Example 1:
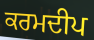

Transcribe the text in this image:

ਕਰਮਦੀਪ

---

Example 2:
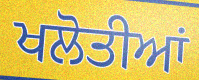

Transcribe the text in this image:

ਖਲੋਤੀਆਂ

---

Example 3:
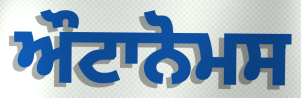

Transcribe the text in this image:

ਔਟਾਨੋਮਸ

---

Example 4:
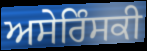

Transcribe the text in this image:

ਅਸੇਰਿੰਸਕੀ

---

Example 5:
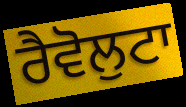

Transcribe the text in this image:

ਰੈਵੋਲੁਟਾ